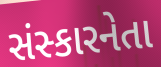
સંસ્કારનેતા